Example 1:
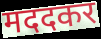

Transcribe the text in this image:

मददकर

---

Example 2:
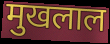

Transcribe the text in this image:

मुखलाल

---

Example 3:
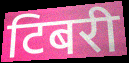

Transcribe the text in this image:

टिबरी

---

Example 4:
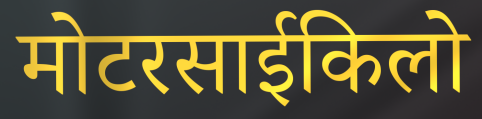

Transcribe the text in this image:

मोटरसाईकिलो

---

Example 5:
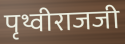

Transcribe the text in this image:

पृथ्वीराजजी